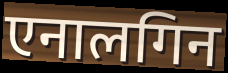
एनालगिन